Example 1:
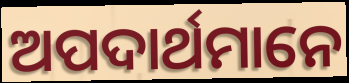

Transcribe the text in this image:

ଅପଦାର୍ଥମାନେ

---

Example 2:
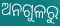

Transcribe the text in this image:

ଅନଗୁଳରୁ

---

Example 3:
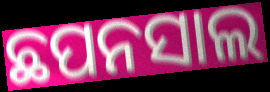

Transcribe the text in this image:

ଛପନସାଲ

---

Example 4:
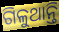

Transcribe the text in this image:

ଗିଳୁଥାନ୍ତି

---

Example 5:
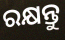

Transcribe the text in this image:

ରକ୍ଷନ୍ତୁ